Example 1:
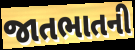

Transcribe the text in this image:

જાતભાતની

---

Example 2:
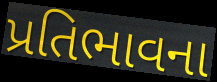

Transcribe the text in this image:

પ્રતિભાવના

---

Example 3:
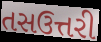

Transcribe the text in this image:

તસઉત્તરી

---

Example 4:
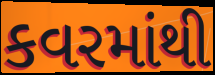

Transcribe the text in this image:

કવરમાંથી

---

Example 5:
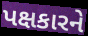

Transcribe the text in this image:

પક્ષકારને